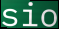
sio